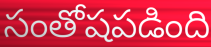
సంతోషపడింది